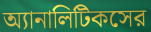
অ্যানালিটিকসের